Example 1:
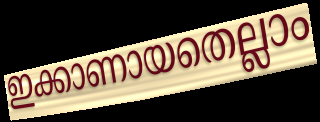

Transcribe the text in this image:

ഇക്കാണായതെല്ലാം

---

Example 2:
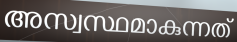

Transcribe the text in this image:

അസ്വസ്ഥമാകുന്നത്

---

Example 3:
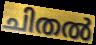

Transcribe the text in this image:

ചിതൽ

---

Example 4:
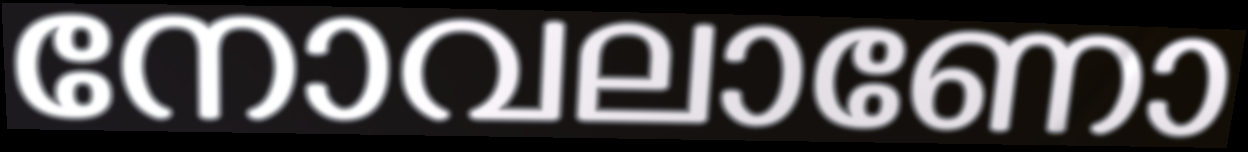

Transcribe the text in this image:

നോവലാണോ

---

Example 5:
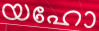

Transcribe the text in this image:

യഹോ